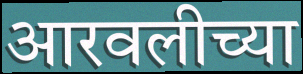
आरवलीच्या